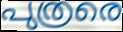
പുത്രരെ